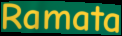
Ramata